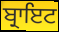
ਬ੍ਰਾਇਟ